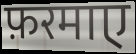
फ़रमाए